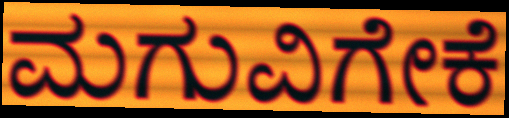
ಮಗುವಿಗೇಕೆ